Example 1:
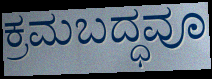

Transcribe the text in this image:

ಕ್ರಮಬದ್ಧವೂ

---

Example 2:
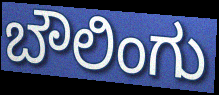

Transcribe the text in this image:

ಬೌಲಿಂಗು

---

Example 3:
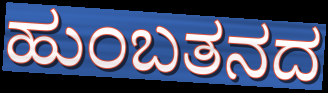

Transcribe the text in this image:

ಹುಂಬತನದ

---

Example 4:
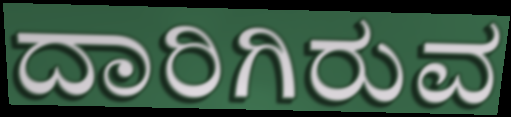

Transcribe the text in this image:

ದಾರಿಗಿರುವ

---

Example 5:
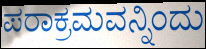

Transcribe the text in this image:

ಪರಾಕ್ರಮವನ್ನಿಂದು